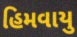
હિમવાયુ